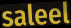
saleel